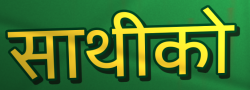
साथीको